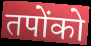
तपोंको